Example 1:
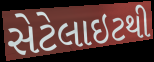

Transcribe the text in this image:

સેટેલાઇટથી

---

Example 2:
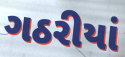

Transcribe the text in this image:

ગઠરીયાં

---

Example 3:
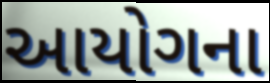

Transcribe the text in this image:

આયોગના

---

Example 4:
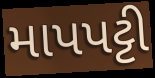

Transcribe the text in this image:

માપપટ્ટી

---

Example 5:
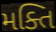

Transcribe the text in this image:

મક્તિ